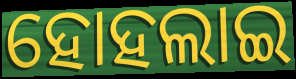
ହୋହଲାଇ